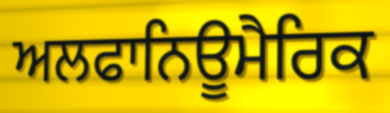
ਅਲਫਾਨਿਊਮੈਰਿਕ